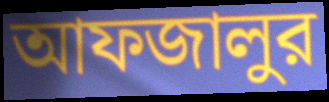
আফজালুর